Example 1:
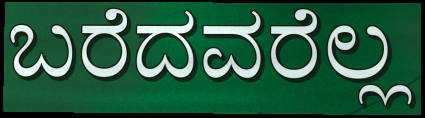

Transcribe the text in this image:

ಬರೆದವರೆಲ್ಲ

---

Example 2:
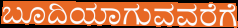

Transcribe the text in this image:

ಬೂದಿಯಾಗುವವರೆಗೆ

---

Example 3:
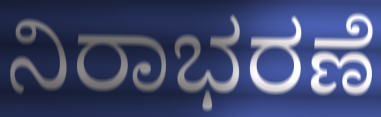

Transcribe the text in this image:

ನಿರಾಭರಣೆ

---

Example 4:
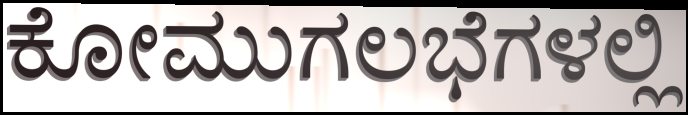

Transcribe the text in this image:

ಕೋಮುಗಲಭೆಗಳಲ್ಲಿ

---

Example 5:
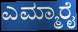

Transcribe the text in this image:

ಎಮ್ಮಾರೈ